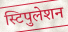
स्टिपुलेशन